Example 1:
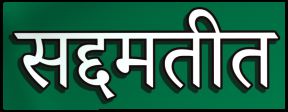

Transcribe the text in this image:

सद्दमतीत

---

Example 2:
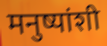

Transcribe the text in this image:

मनुष्यांशी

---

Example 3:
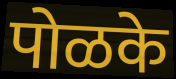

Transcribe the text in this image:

पोळके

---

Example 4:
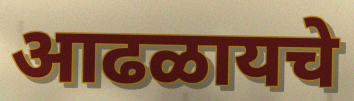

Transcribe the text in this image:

आढळायचे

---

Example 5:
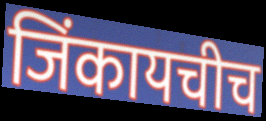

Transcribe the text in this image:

जिंकायचीच